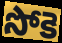
సోకె